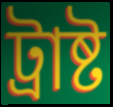
ট্রাষ্ট